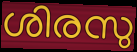
ശിരസു